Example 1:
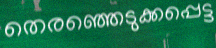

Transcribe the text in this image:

തെരഞ്ഞെടുക്കപ്പെട്ട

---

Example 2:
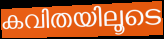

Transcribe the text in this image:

കവിതയിലൂടെ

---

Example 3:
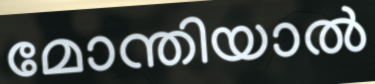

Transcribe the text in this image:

മോന്തിയാൽ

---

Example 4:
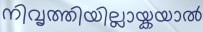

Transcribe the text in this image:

നിവൃത്തിയില്ലായ്കയാൽ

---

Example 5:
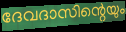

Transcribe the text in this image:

ദേവദാസിന്റെയും